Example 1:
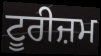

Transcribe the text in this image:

ਟੂਰੀਜ਼ਮ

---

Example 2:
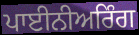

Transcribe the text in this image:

ਪਾਈਨੀਅਰਿੰਗ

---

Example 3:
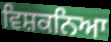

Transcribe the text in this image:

ਵਿਸ਼ਕਨਿਆ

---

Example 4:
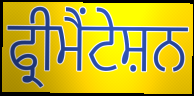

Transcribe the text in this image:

ਫ੍ਰੀਮੈਂਟੇਸ਼ਨ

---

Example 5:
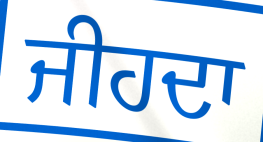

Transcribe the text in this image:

ਜੀਹਦਾ